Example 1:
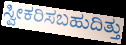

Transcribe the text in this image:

ಸ್ವೀಕರಿಸಬಹುದಿತ್ತು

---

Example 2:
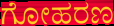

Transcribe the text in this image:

ಗೋಹರಣ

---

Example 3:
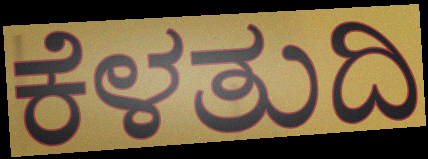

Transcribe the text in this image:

ಕೆಳತುದಿ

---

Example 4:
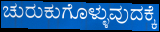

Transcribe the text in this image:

ಚುರುಕುಗೊಳ್ಳುವುದಕ್ಕೆ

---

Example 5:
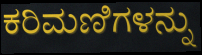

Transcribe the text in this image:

ಕರಿಮಣಿಗಳನ್ನು